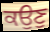
ਕਉਣੁ